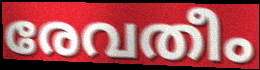
രേവതീം